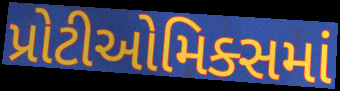
પ્રોટીઓમિક્સમાં